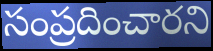
సంప్రదించారని